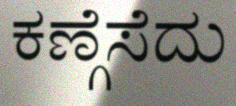
ಕಣ್ಗೆಸೆದು